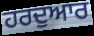
ਹਰਦੁਆਰ